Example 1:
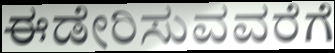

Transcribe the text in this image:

ಈಡೇರಿಸುವವರೆಗೆ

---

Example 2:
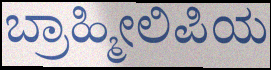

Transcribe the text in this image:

ಬ್ರಾಹ್ಮೀಲಿಪಿಯ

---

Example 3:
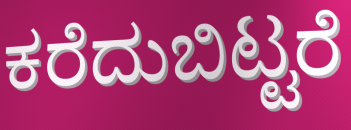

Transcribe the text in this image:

ಕರೆದುಬಿಟ್ಟರೆ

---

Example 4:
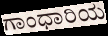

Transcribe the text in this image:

ಗಾಂಧಾರಿಯ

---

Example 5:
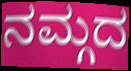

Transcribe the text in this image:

ನಮ್ಗದ